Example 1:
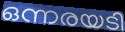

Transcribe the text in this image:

ഒന്നരയടി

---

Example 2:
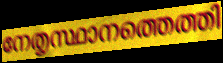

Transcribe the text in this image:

നേതൃസ്ഥാനത്തെത്തി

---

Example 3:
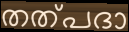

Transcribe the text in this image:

തത്പദാ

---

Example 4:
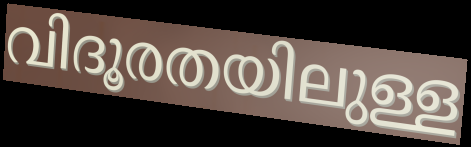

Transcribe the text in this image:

വിദൂരതയിലുള്ള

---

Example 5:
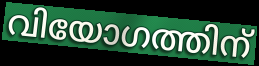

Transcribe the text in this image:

വിയോഗത്തിന്